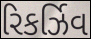
રિકર્ઝિવ